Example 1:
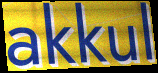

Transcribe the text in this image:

akkul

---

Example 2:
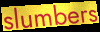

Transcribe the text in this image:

slumbers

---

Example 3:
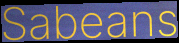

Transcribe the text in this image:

Sabeans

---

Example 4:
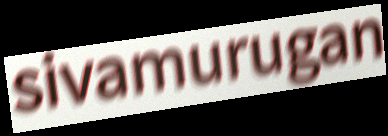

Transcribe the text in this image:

sivamurugan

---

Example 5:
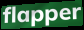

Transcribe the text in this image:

flapper